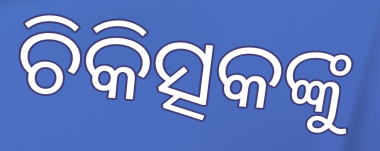
ଚିକିତ୍ସକଙ୍କୁ